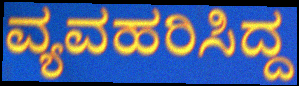
ವ್ಯವಹರಿಸಿದ್ದ